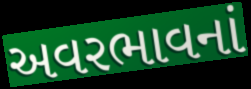
અવરભાવનાં